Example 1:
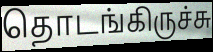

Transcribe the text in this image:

தொடங்கிருச்சு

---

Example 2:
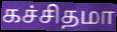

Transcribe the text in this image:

கச்சிதமா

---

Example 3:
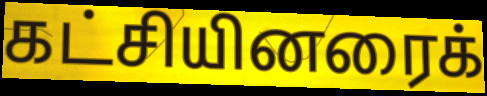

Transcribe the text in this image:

கட்சியினரைக்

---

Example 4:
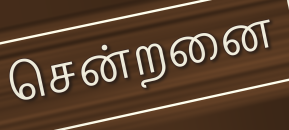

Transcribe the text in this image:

சென்றனை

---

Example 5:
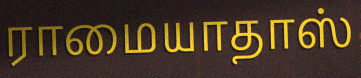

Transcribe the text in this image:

ராமையாதாஸ்